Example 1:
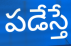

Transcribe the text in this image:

పడేస్తే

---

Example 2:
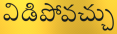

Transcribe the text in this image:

విడిపోవచ్చు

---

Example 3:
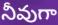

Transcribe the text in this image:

నీవుగా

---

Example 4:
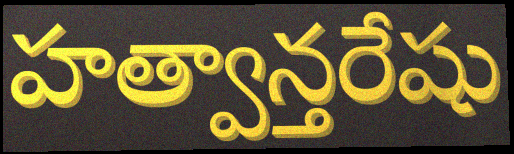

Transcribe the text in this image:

హత్వాన్తరేషు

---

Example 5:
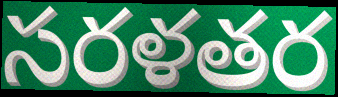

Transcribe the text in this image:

సరళతర